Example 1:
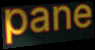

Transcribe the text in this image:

pane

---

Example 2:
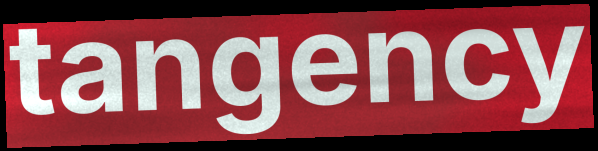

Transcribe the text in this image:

tangency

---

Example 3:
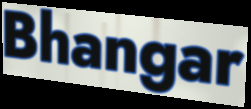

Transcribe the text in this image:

Bhangar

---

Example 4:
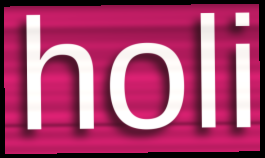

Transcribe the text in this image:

holi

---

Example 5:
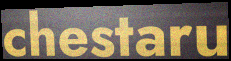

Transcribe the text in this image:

chestaru